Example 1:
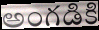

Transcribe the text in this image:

అంగడికి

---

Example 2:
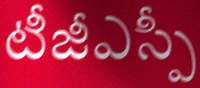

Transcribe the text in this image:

టీజీఎస్పీ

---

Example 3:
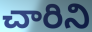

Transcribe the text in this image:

చారిని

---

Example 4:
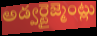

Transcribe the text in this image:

అడ్వర్టైజ్మెంట్లు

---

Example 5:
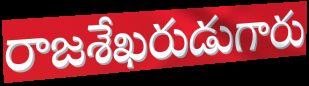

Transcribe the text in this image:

రాజశేఖరుడుగారు